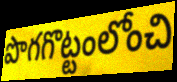
పొగగొట్టంలోంచి